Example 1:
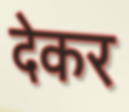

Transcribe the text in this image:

देकर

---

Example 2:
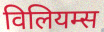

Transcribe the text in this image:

विलियम्स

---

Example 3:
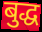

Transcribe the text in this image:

बुद्ध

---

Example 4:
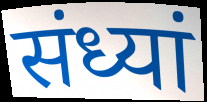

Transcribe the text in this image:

संध्यां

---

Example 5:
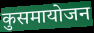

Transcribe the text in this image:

कुसमायोजन